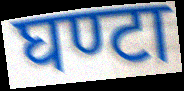
घण्टा